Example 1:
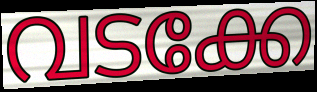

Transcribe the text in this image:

വടക്കേ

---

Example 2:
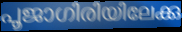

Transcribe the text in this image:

പൂജാഗിരിയിലേക്കു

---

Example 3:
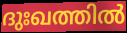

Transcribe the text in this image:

ദുഃഖത്തിൽ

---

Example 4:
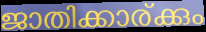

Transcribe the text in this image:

ജാതിക്കാര്ക്കും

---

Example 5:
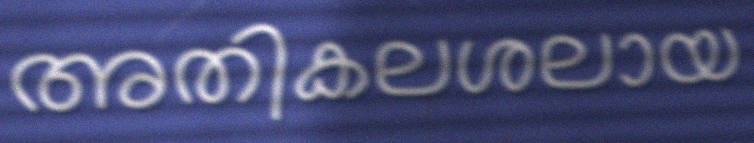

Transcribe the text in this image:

അതികലശലായ